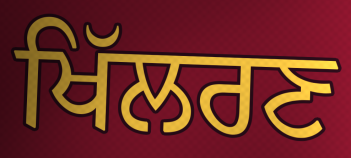
ਖਿੱਲਰਣ